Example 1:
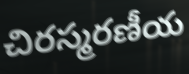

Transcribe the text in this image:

చిరస్మరణీయ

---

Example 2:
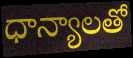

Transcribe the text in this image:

ధాన్యాలతో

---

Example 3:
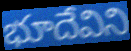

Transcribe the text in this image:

భూదేవిని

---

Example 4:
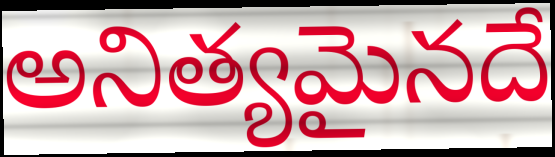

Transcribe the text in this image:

అనిత్యమైనదే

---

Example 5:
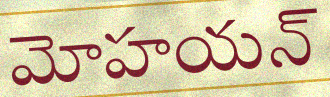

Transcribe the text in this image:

మోహయన్